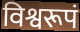
विश्वरूपं